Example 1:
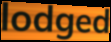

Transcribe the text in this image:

lodged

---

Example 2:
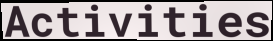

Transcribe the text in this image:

Activities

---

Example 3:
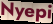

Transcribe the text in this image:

Nyepi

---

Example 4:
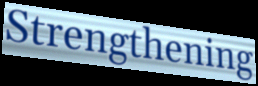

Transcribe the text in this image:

Strengthening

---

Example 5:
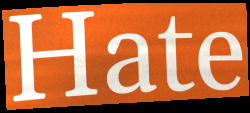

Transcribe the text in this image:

Hate